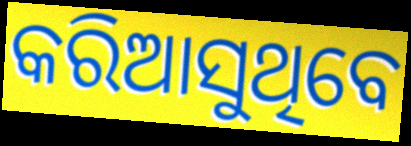
କରିଆସୁଥିବେ